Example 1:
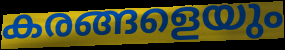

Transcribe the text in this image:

കരങ്ങളെയും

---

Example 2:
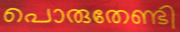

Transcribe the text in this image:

പൊരുതേണ്ടി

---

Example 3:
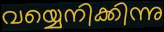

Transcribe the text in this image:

വയ്യെനിക്കിന്നു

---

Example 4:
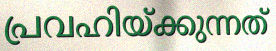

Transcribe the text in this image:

പ്രവഹിയ്ക്കുന്നത്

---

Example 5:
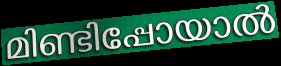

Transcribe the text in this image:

മിണ്ടിപ്പോയാൽ